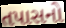
તપાસનો